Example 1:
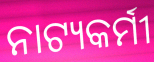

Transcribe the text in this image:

ନାଟ୍ୟକର୍ମୀ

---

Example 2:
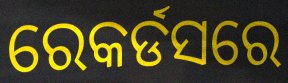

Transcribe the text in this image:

ରେକର୍ଡସରେ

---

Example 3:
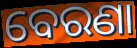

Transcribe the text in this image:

ବେରଣା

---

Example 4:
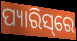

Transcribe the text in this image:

ପ୍ୟାରିସ୍‌ରେ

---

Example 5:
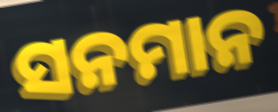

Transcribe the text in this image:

ସନମାନ